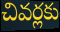
చివర్లకు